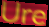
Ure